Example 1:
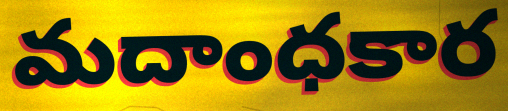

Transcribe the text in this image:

మదాంధకార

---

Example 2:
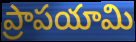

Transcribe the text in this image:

ప్రాపయామి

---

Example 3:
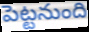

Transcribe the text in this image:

పెట్టనుంది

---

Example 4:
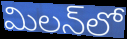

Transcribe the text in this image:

మిలన్‌లో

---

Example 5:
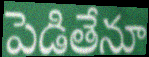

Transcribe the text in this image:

పెడితేనూ